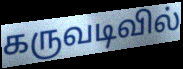
கருவடிவில்